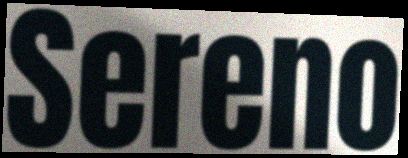
Sereno